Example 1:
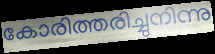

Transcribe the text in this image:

കോരിത്തരിച്ചുനിന്നു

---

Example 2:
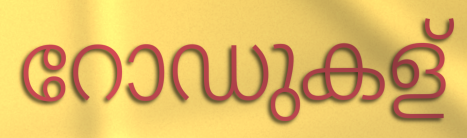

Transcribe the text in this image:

റോഡുകള്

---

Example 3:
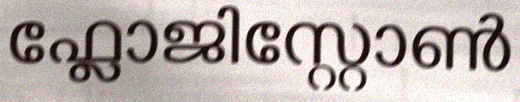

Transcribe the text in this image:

ഫ്ലോജിസ്റ്റോൺ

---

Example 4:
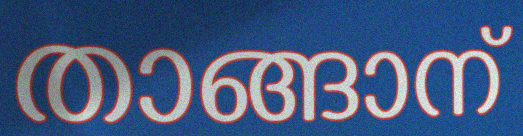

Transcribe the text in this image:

താങ്ങാന്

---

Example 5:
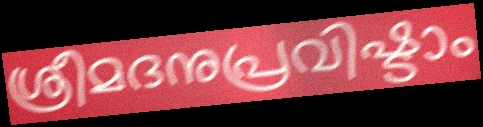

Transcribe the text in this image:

ശ്രീമദനുപ്രവിഷ്ടാം